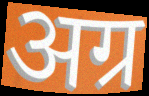
अग्र